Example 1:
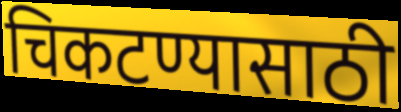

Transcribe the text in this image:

चिकटण्यासाठी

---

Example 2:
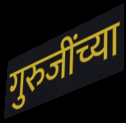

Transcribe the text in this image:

गुरुजींच्या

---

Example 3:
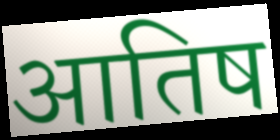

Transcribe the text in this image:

आतिष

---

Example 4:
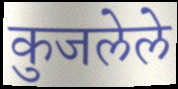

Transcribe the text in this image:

कुजलेले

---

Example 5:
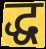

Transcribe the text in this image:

द्ध